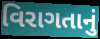
વિરાગતાનું